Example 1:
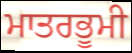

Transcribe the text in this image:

ਮਾਤਰਭੂਮੀ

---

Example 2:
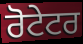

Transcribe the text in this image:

ਰੋਟੇਟਰ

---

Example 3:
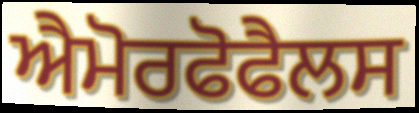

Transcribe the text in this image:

ਐਮੋਰਫੋਫੈਲਸ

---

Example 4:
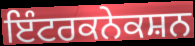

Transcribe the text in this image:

ਇੰਟਰਕਨੇਕਸ਼ਨ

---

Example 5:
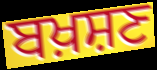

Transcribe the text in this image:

ਬਖ਼ਸ਼ਣ